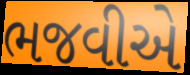
ભજવીએ